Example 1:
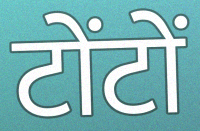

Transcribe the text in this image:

टोंटों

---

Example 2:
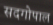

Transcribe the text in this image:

सदगोपाल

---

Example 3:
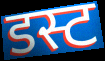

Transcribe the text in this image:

डस्ट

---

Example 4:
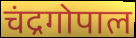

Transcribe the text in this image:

चंद्रगोपाल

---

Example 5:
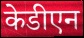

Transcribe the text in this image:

केडीएन